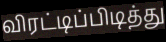
விரட்டிப்பிடித்து